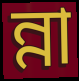
ন্না